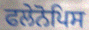
ਫਲੇਨੋਪਿਸ